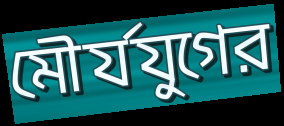
মৌর্যযুগের